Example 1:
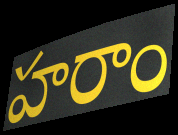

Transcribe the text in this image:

హరాం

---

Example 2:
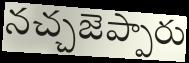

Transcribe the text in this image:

నచ్చజెప్పారు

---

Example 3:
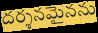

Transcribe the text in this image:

దర్శనమైనను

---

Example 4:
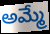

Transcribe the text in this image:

అమ్మే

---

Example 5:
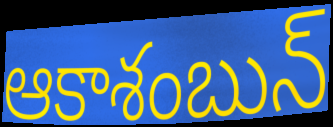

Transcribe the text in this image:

ఆకాశంబున్